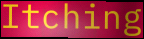
Itching